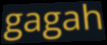
gagah